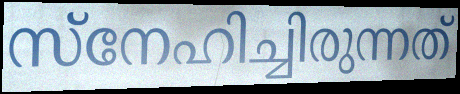
സ്നേഹിച്ചിരുന്നത്